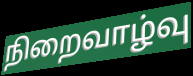
நிறைவாழ்வு